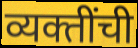
व्यक्‍तींची